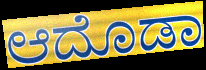
ಆದೊಡಾ